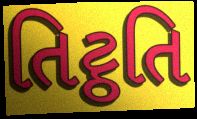
તિટ્ઠતિ